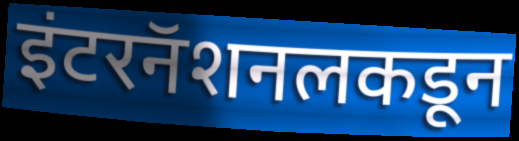
इंटरनॅशनलकडून